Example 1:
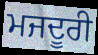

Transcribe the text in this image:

ਮਜਦੂਰੀ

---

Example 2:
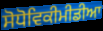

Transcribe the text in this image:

ਸੋਧੋਵਿਕੀਮੀਡੀਆ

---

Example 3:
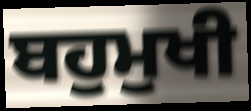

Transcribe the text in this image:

ਬਹੁਮੁਖੀ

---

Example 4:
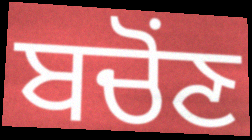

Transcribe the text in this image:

ਬਚੋਂਣ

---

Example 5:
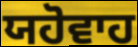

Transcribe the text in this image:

ਯਹੋਵਾਹ